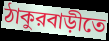
ঠাকুরবাড়ীতে